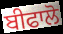
ਬੀਫਾਲੋ